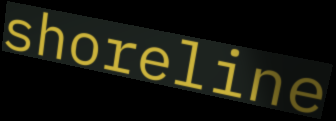
shoreline